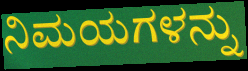
ನಿಮಯಗಳನ್ನು